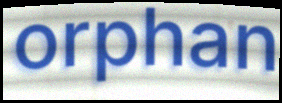
orphan